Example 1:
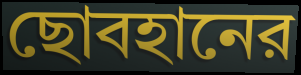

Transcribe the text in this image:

ছোবহানের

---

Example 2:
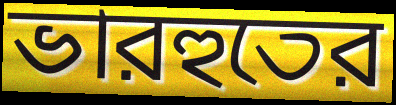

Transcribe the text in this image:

ভারহুতের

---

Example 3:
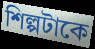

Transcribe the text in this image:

শিল্পটাকে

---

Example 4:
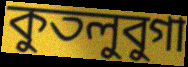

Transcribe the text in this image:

কুতলুবুগা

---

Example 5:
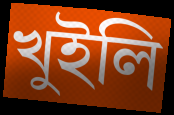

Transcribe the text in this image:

খুইলি